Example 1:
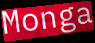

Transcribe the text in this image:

Monga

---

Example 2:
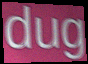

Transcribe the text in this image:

dug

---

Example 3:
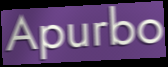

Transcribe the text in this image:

Apurbo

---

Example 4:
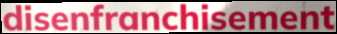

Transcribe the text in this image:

disenfranchisement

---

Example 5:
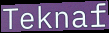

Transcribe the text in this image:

Teknaf